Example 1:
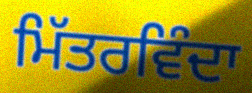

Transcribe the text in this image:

ਮਿੱਤਰਵਿੰਦਾ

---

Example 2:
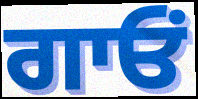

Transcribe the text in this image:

ਗਾਓਂ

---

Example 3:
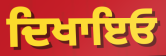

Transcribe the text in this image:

ਦਿਖਾਇਓ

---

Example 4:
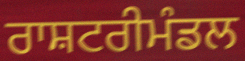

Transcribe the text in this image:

ਰਾਸ਼ਟਰੀਮੰਡਲ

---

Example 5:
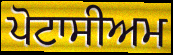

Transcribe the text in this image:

ਪੋਟਾਸੀਅਮ